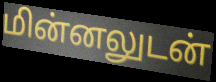
மின்னலுடன்